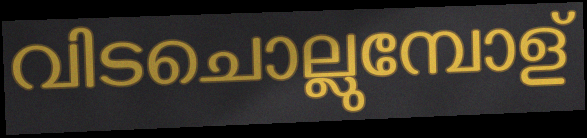
വിടചൊല്ലുമ്പോള്